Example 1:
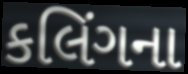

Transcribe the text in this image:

કલિંગના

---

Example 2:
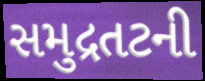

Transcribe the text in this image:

સમુદ્રતટની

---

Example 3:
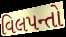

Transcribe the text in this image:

વિલપન્તો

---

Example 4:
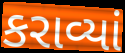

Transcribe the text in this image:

કરાવ્યાં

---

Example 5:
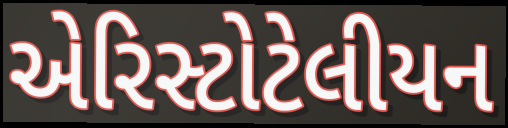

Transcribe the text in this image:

એરિસ્ટોટેલીયન